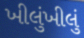
ખીલુંખીલું